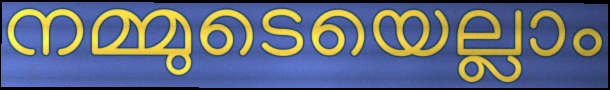
നമ്മുടെയെല്ലാം